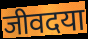
जीवदया